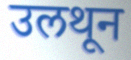
उलथून